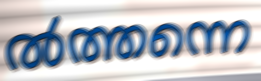
ൽത്തന്നെ